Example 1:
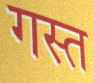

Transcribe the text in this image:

गस्त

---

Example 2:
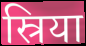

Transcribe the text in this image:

स्रिया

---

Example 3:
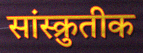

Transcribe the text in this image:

सांस्क्रुतीक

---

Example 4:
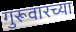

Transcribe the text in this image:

गुरूवारच्या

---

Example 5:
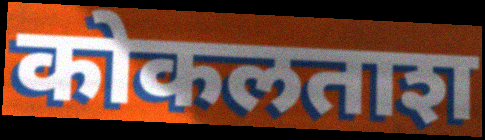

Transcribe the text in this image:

कोकलताश